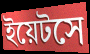
ইয়েটসে